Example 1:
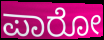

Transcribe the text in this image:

ಪಾರೋ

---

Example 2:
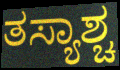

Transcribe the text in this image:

ತಸ್ಯಾಶ್ಚ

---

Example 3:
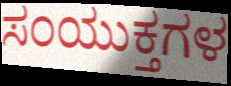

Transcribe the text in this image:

ಸಂಯುಕ್ತಗಳ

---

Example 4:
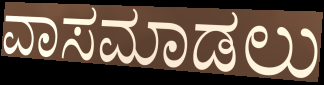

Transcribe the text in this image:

ವಾಸಮಾಡಲು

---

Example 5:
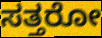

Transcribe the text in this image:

ಸತ್ತರೋ